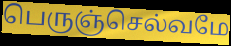
பெருஞ்செல்வமே